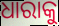
ଧାରାକୁ